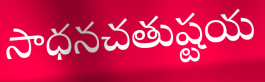
సాధనచతుష్టయ